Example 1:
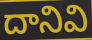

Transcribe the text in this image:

దానివి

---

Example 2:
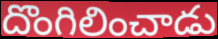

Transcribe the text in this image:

దొంగిలించాడు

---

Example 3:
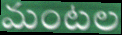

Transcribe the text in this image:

మంటల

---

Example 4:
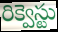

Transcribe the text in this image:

రిక్వెస్టు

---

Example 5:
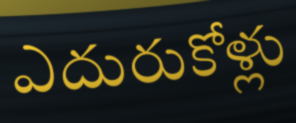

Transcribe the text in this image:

ఎదురుకోళ్లు